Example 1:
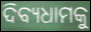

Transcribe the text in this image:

ଦିବ୍ୟଧାମକୁ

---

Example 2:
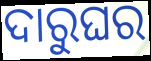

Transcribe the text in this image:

ଦାରୁଘର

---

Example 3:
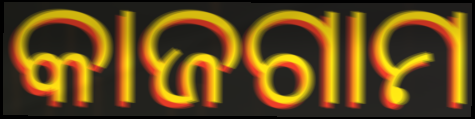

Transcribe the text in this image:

କାଜଗାମ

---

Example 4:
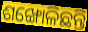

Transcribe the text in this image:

ଶଙ୍ଖୋଳିଛନ୍ତି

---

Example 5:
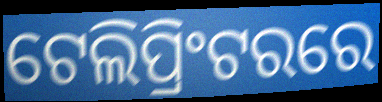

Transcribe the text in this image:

ଟେଲିପ୍ରିଂଟରରେ